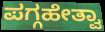
ಪಗ್ಗಹೇತ್ವಾ